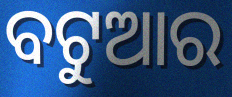
ବଟୁଆର